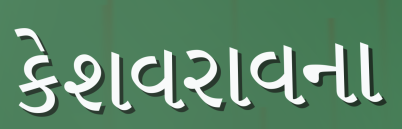
કેશવરાવના